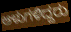
ಆಳುಗಳಿದ್ದರು